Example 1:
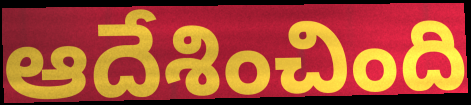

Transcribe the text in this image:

ఆదేశించింది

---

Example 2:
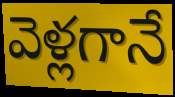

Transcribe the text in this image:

వెళ్లగానే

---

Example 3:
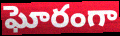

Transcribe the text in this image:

ఘోరంగా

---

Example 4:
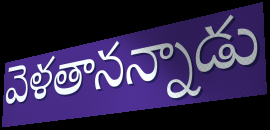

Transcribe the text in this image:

వెళతానన్నాడు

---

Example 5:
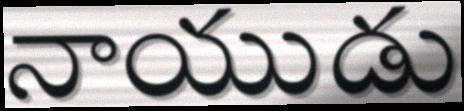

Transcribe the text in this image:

నాయుడు